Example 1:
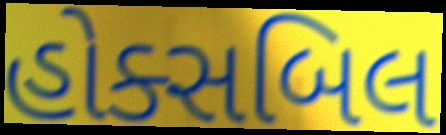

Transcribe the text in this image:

હોક્સબિલ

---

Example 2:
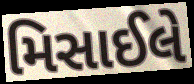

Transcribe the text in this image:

મિસાઈલે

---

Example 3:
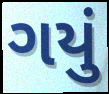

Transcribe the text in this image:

ગયું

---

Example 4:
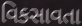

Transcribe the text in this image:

વિકસાવતા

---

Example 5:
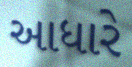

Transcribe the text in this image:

આધારે